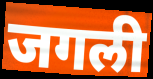
जगली